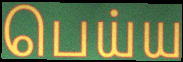
பெய்ய